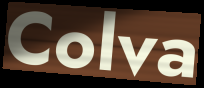
Colva